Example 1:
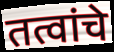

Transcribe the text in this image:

तत्वांचे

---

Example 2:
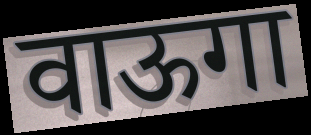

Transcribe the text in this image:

वाऊगा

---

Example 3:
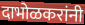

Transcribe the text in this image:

दाभोळकरांनी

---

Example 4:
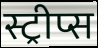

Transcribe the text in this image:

स्ट्रीप्स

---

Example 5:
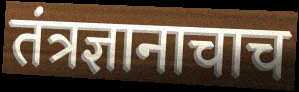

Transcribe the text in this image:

तंत्रज्ञानाचाच